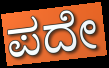
ಪದೇ